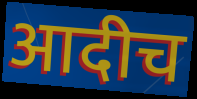
आदीच